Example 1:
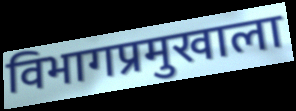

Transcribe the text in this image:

विभागप्रमुखाला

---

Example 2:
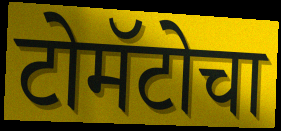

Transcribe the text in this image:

टोमॅटोचा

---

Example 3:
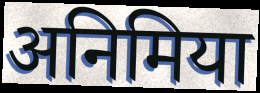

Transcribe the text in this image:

अनिमिया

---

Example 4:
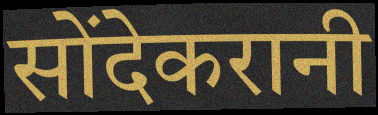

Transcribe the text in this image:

सोंदेकरानी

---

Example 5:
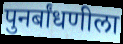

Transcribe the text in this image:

पुनर्बांधणीला